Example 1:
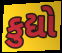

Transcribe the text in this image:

કુદ્યો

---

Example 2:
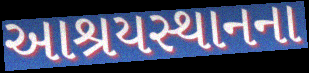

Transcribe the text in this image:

આશ્રયસ્થાનના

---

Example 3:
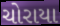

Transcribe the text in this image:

ચોરાયા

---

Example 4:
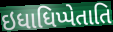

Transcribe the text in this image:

ઇધાધિપ્પેતાતિ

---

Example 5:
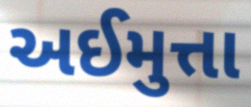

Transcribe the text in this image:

અઈમુત્તા